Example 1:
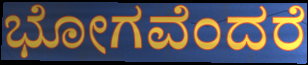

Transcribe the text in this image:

ಭೋಗವೆಂದರೆ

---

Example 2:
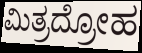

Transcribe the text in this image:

ಮಿತ್ರದ್ರೋಹ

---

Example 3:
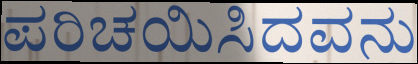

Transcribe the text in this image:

ಪರಿಚಯಿಸಿದವನು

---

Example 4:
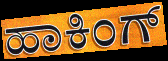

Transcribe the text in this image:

ಹಾಕಿಂಗ್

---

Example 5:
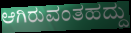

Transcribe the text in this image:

ಆಗಿರುವಂತಹದ್ದು